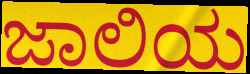
ಜಾಲಿಯ